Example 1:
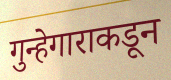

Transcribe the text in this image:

गुन्हेगाराकडून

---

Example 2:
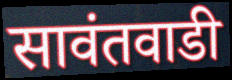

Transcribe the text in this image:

सावंतवाडी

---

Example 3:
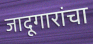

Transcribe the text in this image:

जादूगारांचा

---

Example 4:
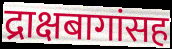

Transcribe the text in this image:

द्राक्षबागांसह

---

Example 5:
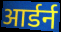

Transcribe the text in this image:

आर्डर्न